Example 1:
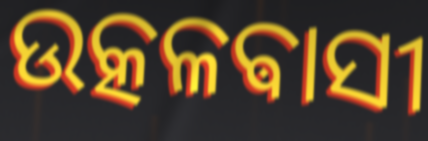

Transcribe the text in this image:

ଉତ୍କଳଵାସୀ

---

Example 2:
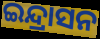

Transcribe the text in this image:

ଇନ୍ଦ୍ରାସନ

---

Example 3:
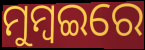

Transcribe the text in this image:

ମୁମ୍ବଇରେ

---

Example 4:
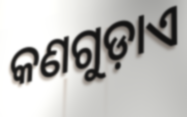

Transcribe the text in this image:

କଣଗୁଡ଼ାଏ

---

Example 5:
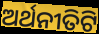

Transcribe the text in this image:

ଅର୍ଥନୀତିଟି